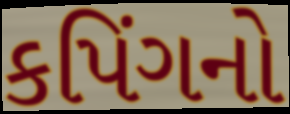
કપિંગનો